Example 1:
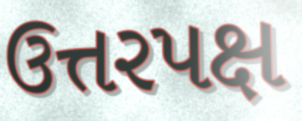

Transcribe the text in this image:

ઉત્તરપક્ષ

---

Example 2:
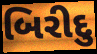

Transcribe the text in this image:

બિરીદુ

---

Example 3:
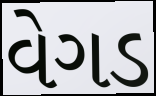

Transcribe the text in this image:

વેગડ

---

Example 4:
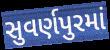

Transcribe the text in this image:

સુવર્ણપુરમાં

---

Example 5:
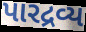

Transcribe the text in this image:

પારદ્રવ્ય